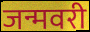
जन्मवरी